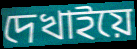
দেখাইয়ে